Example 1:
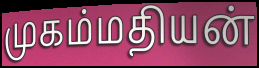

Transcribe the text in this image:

முகம்மதியன்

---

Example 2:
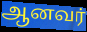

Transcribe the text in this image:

ஆனவர்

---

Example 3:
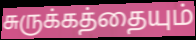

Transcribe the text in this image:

சுருக்கத்தையும்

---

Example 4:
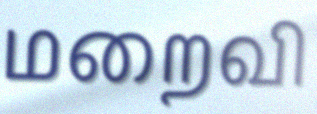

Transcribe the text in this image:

மறைவி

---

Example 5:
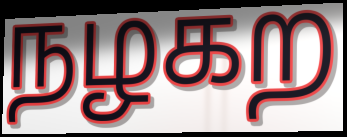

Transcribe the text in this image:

நழகற